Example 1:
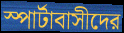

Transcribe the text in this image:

স্পার্টাবাসীদের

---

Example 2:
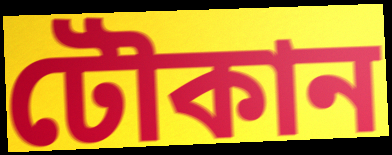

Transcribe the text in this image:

টৌকান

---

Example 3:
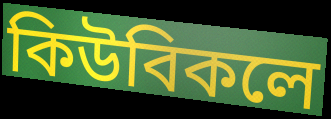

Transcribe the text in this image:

কিউবিকলে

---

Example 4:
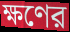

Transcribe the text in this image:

ক্ষণের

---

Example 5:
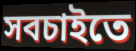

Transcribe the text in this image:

সবচাইতে